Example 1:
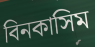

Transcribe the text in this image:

বিনকাসিম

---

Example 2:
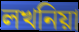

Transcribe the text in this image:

লখনিয়া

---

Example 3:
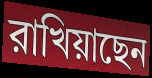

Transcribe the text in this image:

রাখিয়াছেন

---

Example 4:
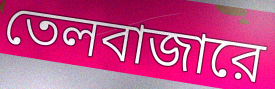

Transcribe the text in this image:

তেলবাজারে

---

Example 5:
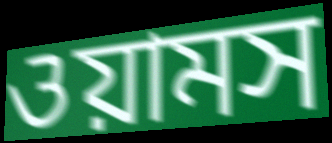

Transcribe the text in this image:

ওয়ামস